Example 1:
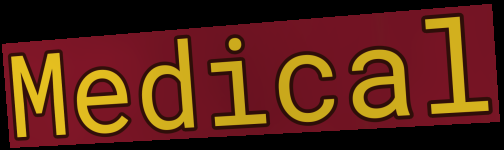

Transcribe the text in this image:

Medical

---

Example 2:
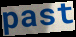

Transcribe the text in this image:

past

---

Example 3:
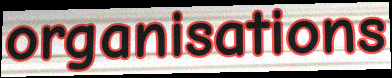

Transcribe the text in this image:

organisations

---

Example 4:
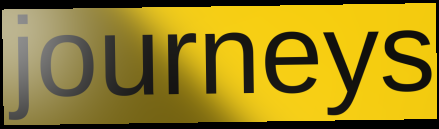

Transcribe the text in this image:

journeys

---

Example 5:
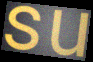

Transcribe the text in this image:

su